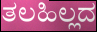
ತಲಹಿಲ್ಲದ